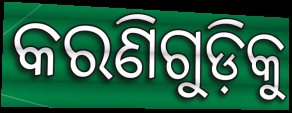
କରଣିଗୁଡ଼ିକୁ